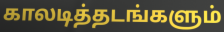
காலடித்தடங்களும்